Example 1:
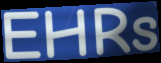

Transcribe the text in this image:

EHRs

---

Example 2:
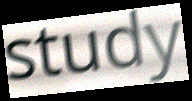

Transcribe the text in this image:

study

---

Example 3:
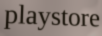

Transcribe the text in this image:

playstore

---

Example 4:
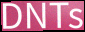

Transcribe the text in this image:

DNTs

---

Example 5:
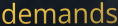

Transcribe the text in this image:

demands